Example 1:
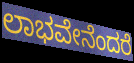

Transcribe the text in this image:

ಲಾಭವೇನೆಂದರೆ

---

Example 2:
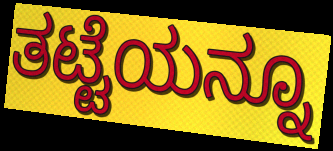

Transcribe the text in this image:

ತಟ್ಟೆಯನ್ನೂ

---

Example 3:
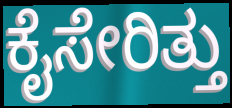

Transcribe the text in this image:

ಕೈಸೇರಿತ್ತು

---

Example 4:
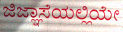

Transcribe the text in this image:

ಜಿಜ್ಞಾಸೆಯಲ್ಲಿಯೇ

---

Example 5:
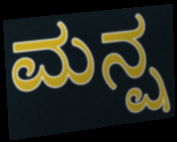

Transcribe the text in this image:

ಮನ್ಷ